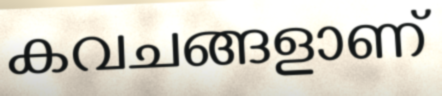
കവചങ്ങളാണ്